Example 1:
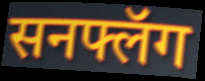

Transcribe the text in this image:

सनफ्लॅग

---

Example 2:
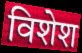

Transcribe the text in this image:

विशेश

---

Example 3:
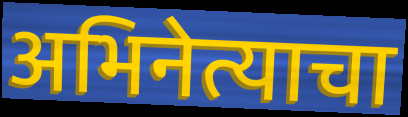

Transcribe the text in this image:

अभिनेत्याचा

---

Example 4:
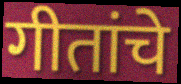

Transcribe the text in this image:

गीतांचे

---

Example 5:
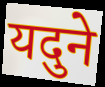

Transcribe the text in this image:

यदुने